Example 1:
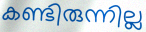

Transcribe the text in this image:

കണ്ടിരുന്നില്ല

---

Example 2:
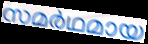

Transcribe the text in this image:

സമർഥമായ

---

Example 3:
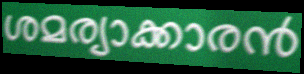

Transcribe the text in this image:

ശമര്യാക്കാരൻ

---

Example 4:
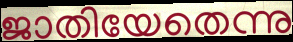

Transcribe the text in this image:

ജാതിയേതെന്നു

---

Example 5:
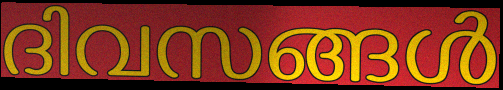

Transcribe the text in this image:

ദിവസങ്ങൾ